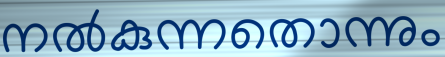
നൽകുന്നതൊന്നും